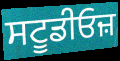
ਸਟੂਡੀਓਜ਼